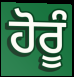
ਹੋਰੂੰ